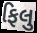
ફિલુ